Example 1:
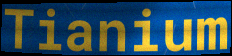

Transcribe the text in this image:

Tianium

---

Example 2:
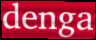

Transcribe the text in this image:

denga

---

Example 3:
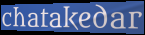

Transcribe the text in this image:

chatakedar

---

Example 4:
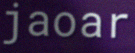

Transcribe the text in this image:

jaoar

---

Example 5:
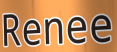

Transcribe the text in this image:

Renee